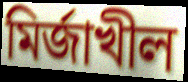
মির্জাখীল